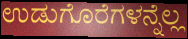
ಉಡುಗೊರೆಗಳನ್ನೆಲ್ಲ